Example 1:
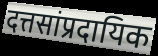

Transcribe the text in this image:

दत्तसांप्रदायिक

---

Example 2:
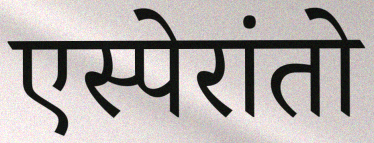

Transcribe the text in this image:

एस्पेरांतो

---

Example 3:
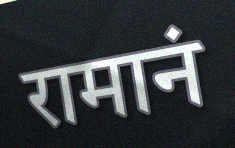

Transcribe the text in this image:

रामानं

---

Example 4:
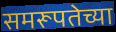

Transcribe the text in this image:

समरूपतेच्या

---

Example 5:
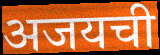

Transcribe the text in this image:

अजयची